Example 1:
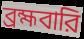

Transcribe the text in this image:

ব্রহ্মবারি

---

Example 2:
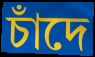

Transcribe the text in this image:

চাঁদে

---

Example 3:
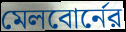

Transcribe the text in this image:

মেলবোর্নের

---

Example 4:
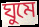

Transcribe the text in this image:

ঘুমে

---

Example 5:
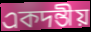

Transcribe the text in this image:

একদন্তীয়